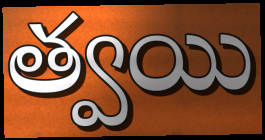
త్వయి